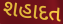
શહાદત